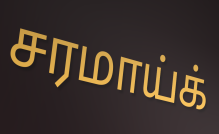
சரமாய்க்